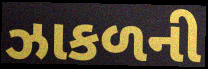
ઝાકળની